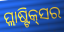
ପ୍ଲାଷ୍ଟିକ୍‌ସର